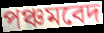
পঞ্চমবেদ